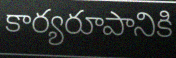
కార్యరూపానికి